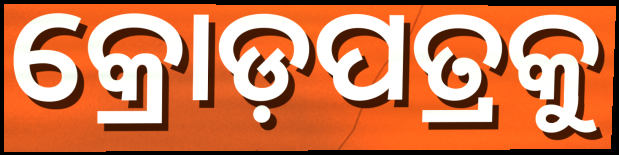
କ୍ରୋଡ଼ପତ୍ରକୁ